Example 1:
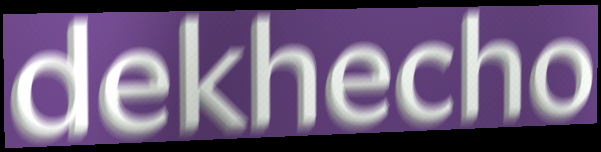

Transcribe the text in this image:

dekhecho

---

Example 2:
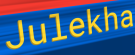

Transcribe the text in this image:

Julekha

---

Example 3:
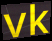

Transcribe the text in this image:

vk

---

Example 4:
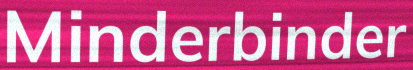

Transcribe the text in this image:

Minderbinder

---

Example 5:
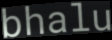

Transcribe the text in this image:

bhalu